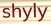
shyly